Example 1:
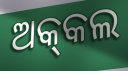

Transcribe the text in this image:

ଅକ୍‍କଲ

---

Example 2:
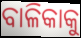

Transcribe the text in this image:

ବାଳିକାକୁ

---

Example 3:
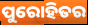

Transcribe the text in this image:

ପୁରୋହିତର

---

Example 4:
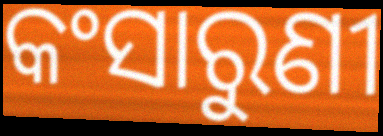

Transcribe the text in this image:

କଂସାରୁଣୀ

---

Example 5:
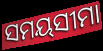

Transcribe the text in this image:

ସମୟସୀମା